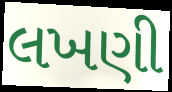
લખણી